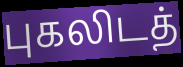
புகலிடத்